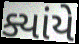
ક્યાંયે